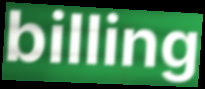
billing